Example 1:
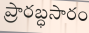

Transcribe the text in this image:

ప్రారబ్ధసారం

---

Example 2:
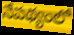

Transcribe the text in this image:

నేపథ్యంలో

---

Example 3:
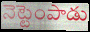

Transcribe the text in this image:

నెట్టెంపాడు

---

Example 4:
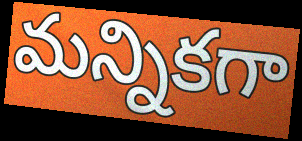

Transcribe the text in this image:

మన్నికగా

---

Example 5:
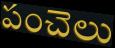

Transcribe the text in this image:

పంచెలు